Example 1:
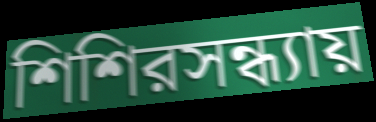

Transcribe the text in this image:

শিশিরসন্ধ্যায়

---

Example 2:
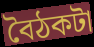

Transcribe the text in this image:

বৈঠকটা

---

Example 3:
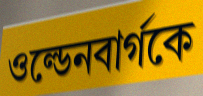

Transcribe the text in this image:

ওল্ডেনবার্গকে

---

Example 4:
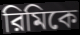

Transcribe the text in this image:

রিমিকে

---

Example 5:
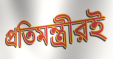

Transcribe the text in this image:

প্রতিমন্ত্রীরই